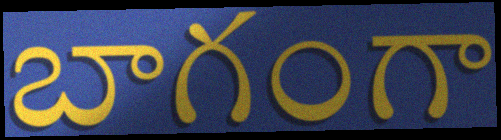
బాగంగా